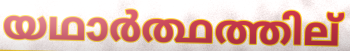
യഥാർത്ഥത്തില്